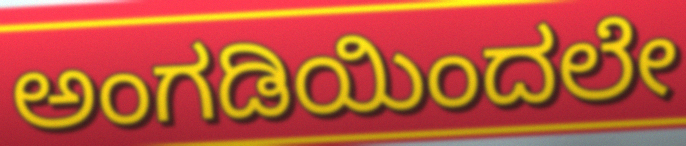
ಅಂಗಡಿಯಿಂದಲೇ